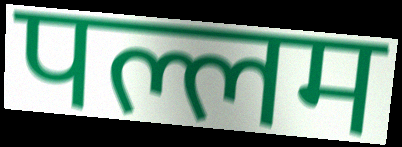
पल्लम